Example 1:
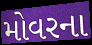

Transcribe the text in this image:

મોવરના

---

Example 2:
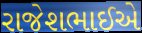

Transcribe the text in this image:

રાજેશભાઈએ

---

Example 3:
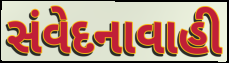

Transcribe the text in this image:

સંવેદનાવાહી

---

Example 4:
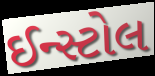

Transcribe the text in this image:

ઈન્સ્ટોલ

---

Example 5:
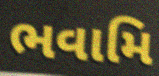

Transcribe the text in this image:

ભવામિ